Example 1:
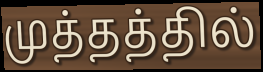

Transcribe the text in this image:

முத்தத்தில்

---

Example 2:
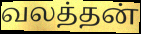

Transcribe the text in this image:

வலத்தன்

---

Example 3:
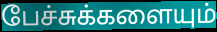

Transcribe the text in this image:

பேச்சுக்களையும்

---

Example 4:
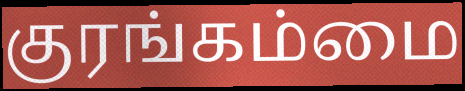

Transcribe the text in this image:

குரங்கம்மை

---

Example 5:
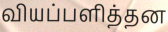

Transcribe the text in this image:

வியப்பளித்தன